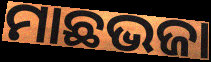
ମାଛଭଜା